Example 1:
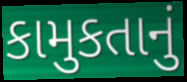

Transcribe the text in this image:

કામુકતાનું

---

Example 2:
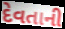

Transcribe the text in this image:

દેવતાની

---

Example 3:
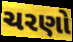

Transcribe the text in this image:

ચરણો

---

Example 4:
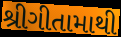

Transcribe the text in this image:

શ્રીગીતામાથી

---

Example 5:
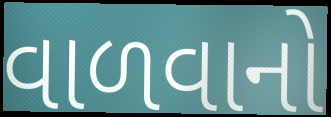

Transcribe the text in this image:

વાળવાનો